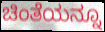
ಚಿಂತೆಯನ್ನೂ